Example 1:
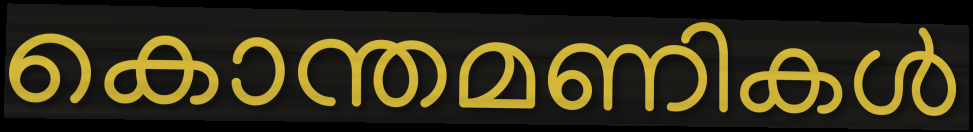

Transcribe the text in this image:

കൊന്തമണികൾ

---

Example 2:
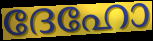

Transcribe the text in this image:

ദേഹോ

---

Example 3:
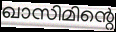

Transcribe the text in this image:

ഖാസിമിന്റെ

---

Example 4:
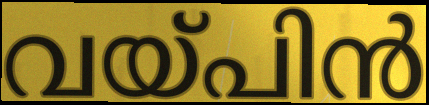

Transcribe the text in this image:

വയ്പിൻ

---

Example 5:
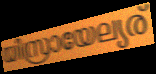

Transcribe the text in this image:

യിസ്രായേല്യര്